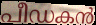
പീഡകൻ